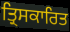
ਤ੍ਰਿਸਕਾਰਿਤ